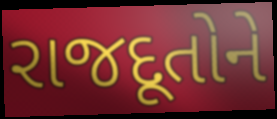
રાજદૂતોને